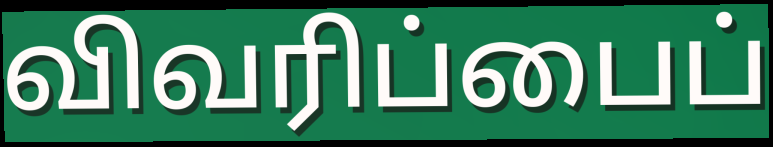
விவரிப்பைப்